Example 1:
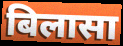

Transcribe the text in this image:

बिलासा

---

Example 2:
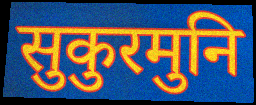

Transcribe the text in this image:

सुकुरमुनि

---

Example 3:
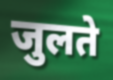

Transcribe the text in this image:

जुलते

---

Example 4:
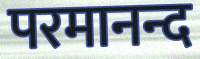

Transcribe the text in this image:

परमानन्‍द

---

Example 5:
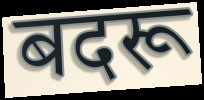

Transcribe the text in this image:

बदरू